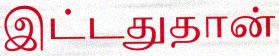
இட்டதுதான்